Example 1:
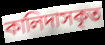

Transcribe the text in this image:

কালিদাসকৃত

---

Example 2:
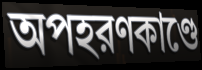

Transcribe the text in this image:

অপহরণকাণ্ডে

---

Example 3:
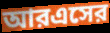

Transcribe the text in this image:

আরএসের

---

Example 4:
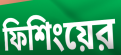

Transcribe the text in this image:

ফিশিংয়ের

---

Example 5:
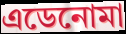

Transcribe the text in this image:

এডেনোমা